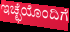
ಇಚ್ಛೆಯೊಂದಿಗೆ